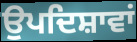
ਉਪਦਿਸ਼ਾਵਾਂ